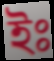
ইঃ